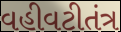
વહીવટીતંત્ર